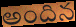
అందిన